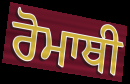
ਰੋਮਾਥੀ